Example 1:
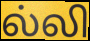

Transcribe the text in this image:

ல்லி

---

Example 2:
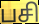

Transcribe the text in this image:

பசி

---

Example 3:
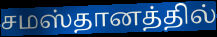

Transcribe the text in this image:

சமஸ்தானத்தில்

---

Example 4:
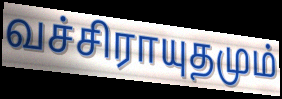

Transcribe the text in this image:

வச்சிராயுதமும்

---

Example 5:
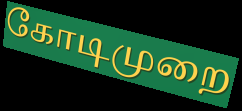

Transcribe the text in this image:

கோடிமுறை